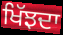
ਖਿੱਝਦਾ